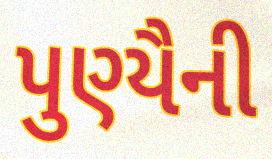
પુણ્યૈની